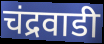
चंद्रवाडी